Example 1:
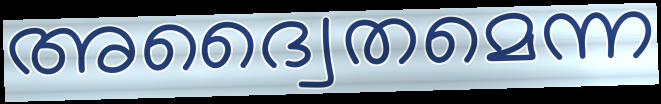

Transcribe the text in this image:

അദ്വൈതമെന്ന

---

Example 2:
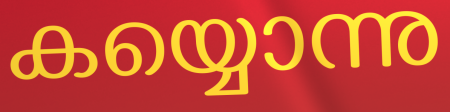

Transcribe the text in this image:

കയ്യൊന്നു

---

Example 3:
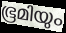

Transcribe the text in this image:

ഭൂമിയും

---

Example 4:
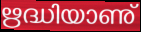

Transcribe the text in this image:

ഋദ്ധിയാണു്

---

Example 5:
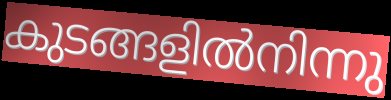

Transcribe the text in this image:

കുടങ്ങളിൽനിന്നു